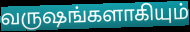
வருஷங்களாகியும்